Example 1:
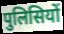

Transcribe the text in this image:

पुलिसियों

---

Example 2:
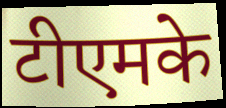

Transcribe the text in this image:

टीएमके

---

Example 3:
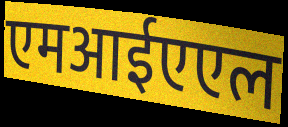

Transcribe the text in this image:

एमआईएएल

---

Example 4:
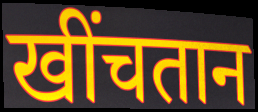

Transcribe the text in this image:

खींचतान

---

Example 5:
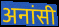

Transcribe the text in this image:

अनांसी